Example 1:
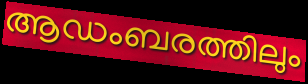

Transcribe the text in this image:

ആഡംബരത്തിലും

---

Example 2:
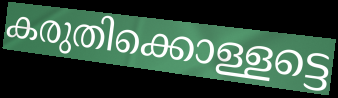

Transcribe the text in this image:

കരുതിക്കൊള്ളട്ടെ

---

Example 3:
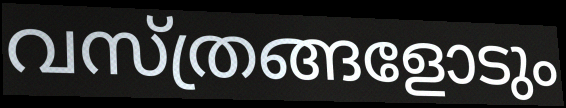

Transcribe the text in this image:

വസ്ത്രങ്ങളോടും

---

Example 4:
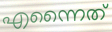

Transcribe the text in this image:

എന്നൈത്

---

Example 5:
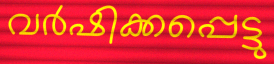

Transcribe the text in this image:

വർഷിക്കപ്പെട്ടു